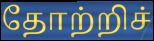
தோற்றிச்